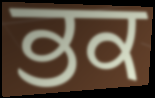
ਭਕ